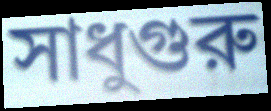
সাধুগুরু